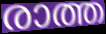
രാത്ത